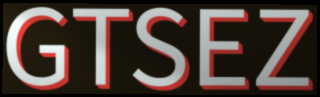
GTSEZ